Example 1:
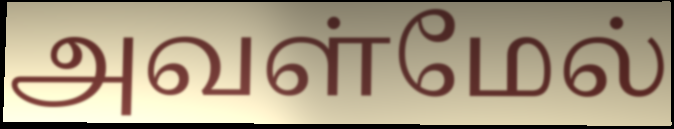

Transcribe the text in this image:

அவள்மேல்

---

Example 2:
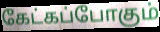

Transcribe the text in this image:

கேட்கப்போகும்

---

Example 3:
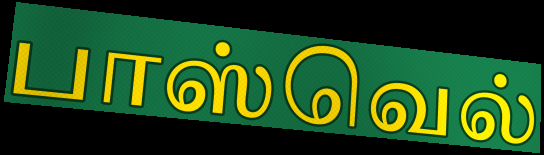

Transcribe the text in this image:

பாஸ்வெல்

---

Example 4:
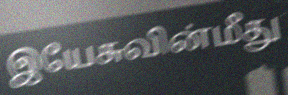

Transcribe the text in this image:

இயேசுவின்மீது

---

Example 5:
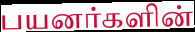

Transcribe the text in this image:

பயனர்களின்